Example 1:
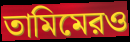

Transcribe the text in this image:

তামিমেরও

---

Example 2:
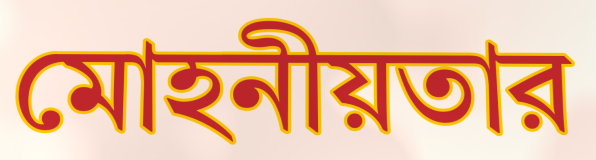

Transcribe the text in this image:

মোহনীয়তার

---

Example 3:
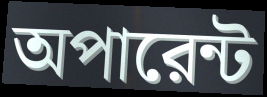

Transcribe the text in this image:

অপারেন্ট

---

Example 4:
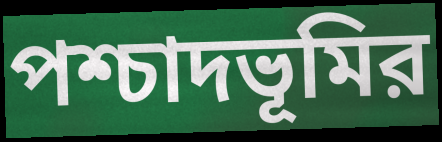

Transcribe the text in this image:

পশ্চাদভূমির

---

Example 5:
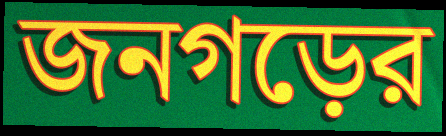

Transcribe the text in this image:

জনগড়ের